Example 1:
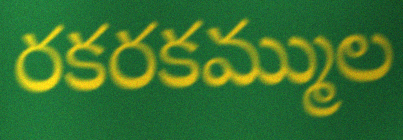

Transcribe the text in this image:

రకరకమ్ముల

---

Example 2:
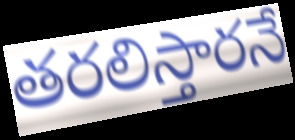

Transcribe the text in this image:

తరలిస్తారనే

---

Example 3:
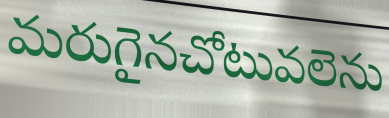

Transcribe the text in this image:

మరుగైనచోటువలెను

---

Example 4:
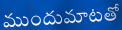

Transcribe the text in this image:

ముందుమాటతో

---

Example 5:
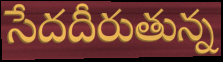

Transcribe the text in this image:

సేదదీరుతున్న